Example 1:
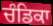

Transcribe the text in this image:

ਚੰਡਿਕਾ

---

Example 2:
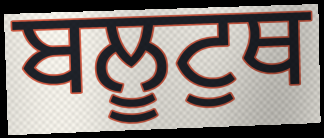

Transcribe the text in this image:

ਬਲੂਟੁਥ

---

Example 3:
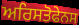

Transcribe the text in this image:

ਅਰਿਸਤੋਫੇਨਸ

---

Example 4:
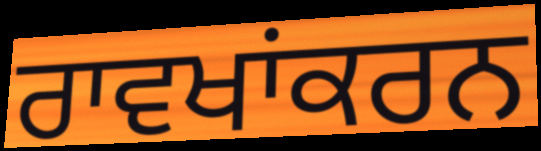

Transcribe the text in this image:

ਰਾਵਖਾਂਕਰਨ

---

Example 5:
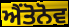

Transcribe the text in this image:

ਐਂਤੋਨੋਵ